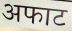
अफाट